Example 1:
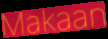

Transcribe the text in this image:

Makaan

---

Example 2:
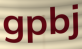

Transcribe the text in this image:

gpbj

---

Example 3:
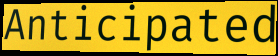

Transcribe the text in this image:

Anticipated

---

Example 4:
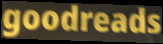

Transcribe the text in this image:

goodreads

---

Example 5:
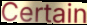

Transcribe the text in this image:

Certain